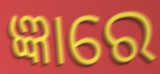
ଜ୍ଞାରେ